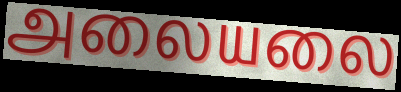
அலையலை